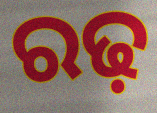
ରଢ଼